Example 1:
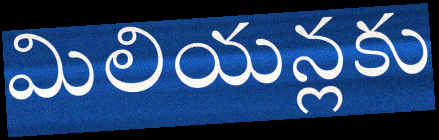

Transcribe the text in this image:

మిలియన్లకు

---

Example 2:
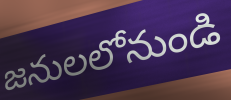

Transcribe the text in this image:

జనులలోనుండి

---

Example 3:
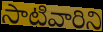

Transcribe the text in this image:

సాటివారిని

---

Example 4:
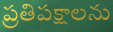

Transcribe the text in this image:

ప్రతిపక్షాలను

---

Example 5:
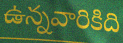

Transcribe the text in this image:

ఉన్నవారికిది